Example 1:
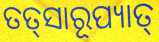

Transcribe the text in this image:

ତତ୍‌ସାରୂପ୍ୟାତ୍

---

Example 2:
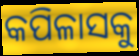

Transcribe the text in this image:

କପିଳାସକୁ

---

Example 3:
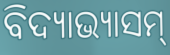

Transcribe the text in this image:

ବିଦ୍ୟାଭ୍ୟାସମ୍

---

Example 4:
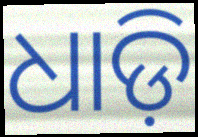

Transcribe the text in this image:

ଧାଡ଼ି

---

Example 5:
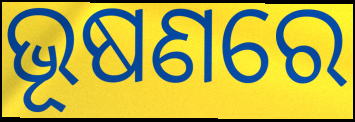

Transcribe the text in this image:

ଭୂଷଣରେ